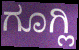
ಗೂಗ್ಲಿ